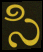
సి